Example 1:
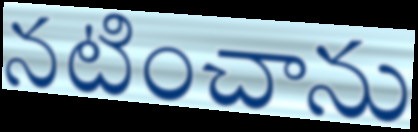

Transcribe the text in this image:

నటించాను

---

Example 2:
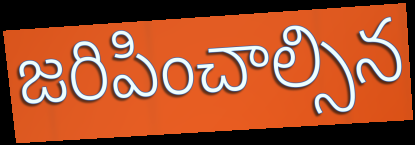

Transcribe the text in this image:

జరిపించాల్సిన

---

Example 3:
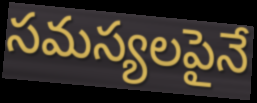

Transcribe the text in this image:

సమస్యలపైనే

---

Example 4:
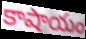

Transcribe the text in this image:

కాషాయం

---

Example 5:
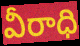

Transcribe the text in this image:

వీరాధి